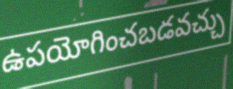
ఉపయోగించబడవచ్చు